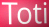
Toti